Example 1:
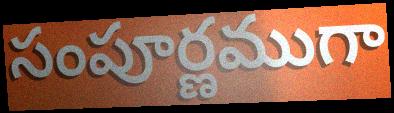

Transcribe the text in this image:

సంపూర్ణముగా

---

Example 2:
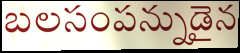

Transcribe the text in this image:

బలసంపన్నుడైన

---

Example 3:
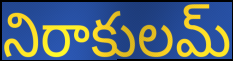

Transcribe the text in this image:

నిరాకులమ్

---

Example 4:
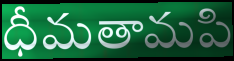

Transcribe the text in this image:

ధీమతామపి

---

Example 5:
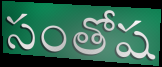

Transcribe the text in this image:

సంతోష